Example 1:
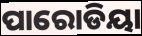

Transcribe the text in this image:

ପାରୋଡିୟା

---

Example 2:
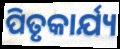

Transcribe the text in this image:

ପିତୃକାର୍ଯ୍ୟ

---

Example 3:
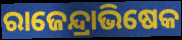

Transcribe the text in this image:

ରାଜେନ୍ଦ୍ରାଭିଷେକ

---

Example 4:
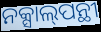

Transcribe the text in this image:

ନକ୍ସାଲ୍‌ପନ୍ଥୀ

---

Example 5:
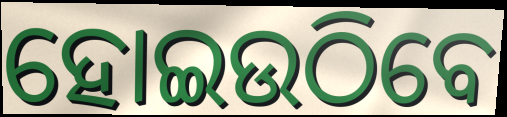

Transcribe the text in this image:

ହୋଇଉଠିବେ